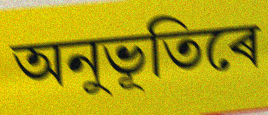
অনুভূতিৰে